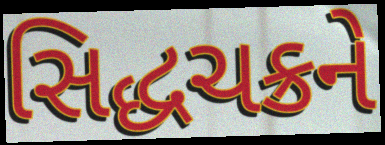
સિદ્ધચક્રને